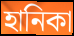
হানিকা